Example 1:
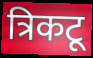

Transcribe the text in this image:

त्रिकटू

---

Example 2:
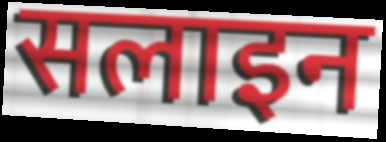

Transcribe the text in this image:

सलाइन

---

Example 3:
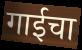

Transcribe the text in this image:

गाईचा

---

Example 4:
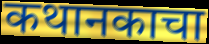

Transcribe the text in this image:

कथानकाचा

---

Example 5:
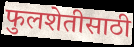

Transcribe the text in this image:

फुलशेतीसाठी